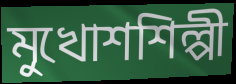
মুখোশশিল্পী